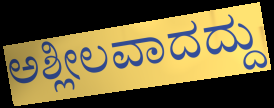
ಅಶ್ಲೀಲವಾದದ್ದು